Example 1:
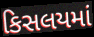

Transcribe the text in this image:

કિસલયમાં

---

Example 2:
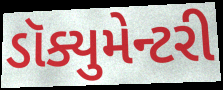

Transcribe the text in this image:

ડૉક્યુમેન્ટરી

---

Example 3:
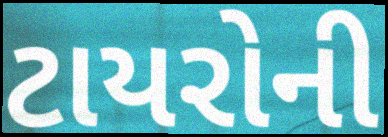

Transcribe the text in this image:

ટાયરોની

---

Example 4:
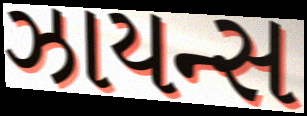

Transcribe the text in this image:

ઝાયન્સ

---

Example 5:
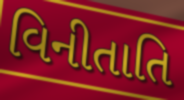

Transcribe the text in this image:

વિનીતાતિ